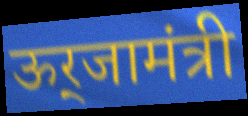
ऊर्जामंत्री